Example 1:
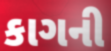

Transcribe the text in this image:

કાગની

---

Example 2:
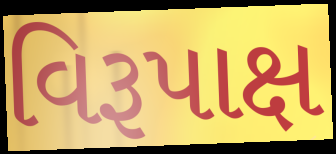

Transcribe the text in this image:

વિરૂપાક્ષ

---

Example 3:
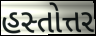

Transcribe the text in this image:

હસ્તોત્તર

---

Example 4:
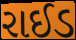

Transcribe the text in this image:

રાઈડ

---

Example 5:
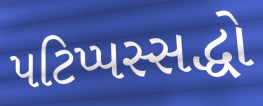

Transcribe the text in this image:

પટિપ્પસ્સદ્ધો